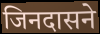
जिनदासने